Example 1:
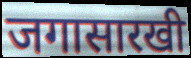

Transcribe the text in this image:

जगासारखी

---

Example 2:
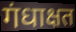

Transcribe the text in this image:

गंधाक्षत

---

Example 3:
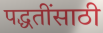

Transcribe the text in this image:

पद्धतींसाठी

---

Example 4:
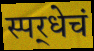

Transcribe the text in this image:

स्पर्धेचं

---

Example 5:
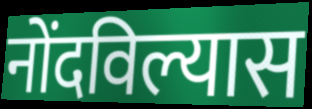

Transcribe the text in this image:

नोंदविल्यास